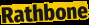
Rathbone